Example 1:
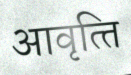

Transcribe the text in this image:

आवृत्‍ति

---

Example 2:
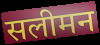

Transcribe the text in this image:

सलीमन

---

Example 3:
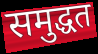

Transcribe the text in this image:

समुद्धत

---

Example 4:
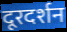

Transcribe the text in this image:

दूरदर्शन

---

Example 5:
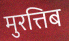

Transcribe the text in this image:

मुरत्तिब